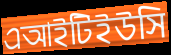
এআইটিইউসি